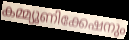
കമ്മ്യൂണിക്കേഷനും